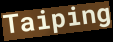
Taiping